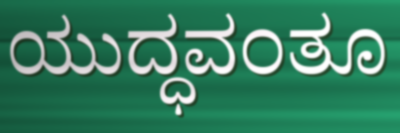
ಯುದ್ಧವಂತೂ